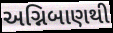
અગ્નિબાણથી